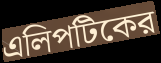
এলিপটিকের